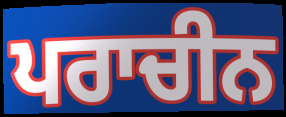
ਪਰਾਚੀਨ